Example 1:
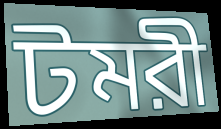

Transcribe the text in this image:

টমরী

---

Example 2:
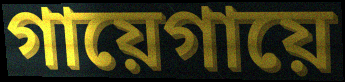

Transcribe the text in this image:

গায়েগায়ে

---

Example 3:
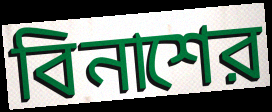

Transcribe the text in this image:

বিনাশের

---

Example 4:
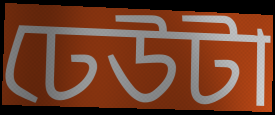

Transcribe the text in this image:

ঢেউটা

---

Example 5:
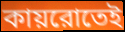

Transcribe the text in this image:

কায়রোতেই